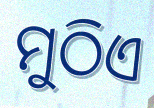
ମୁଠିଏ